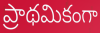
ప్రాథమికంగా